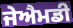
ਜੇਐਮਡੀ